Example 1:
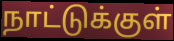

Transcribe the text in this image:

நாட்டுக்குள்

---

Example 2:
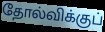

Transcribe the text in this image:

தோல்விக்குப்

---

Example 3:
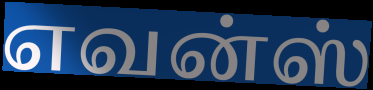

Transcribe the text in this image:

எவன்ஸ்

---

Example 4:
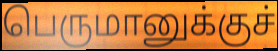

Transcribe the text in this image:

பெருமானுக்குச்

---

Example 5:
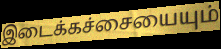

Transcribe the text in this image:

இடைக்கச்சையையும்